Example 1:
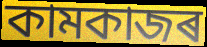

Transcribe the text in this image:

কামকাজৰ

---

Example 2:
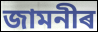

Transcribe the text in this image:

জামনীৰ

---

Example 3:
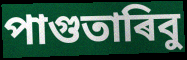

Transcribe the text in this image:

পাগুতাৰিবু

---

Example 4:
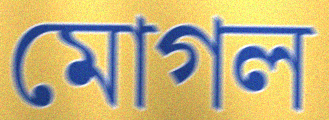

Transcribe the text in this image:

মোগল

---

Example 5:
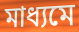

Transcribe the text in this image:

মাধ্যমে